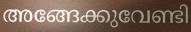
അങ്ങേക്കുവേണ്ടി